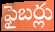
ఫైబర్లు